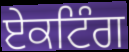
ਏਕਟਿੰਗ